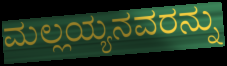
ಮಲ್ಲಯ್ಯನವರನ್ನು